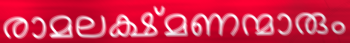
രാമലക്ഷ്മണന്മാരും